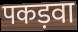
पकड़वा